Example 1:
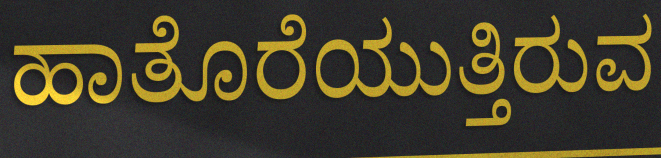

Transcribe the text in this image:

ಹಾತೊರೆಯುತ್ತಿರುವ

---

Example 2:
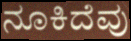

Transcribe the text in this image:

ನೂಕಿದೆವು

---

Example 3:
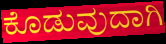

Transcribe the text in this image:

ಕೊಡುವುದಾಗಿ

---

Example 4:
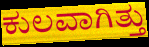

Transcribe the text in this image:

ಕುಲವಾಗಿತ್ತು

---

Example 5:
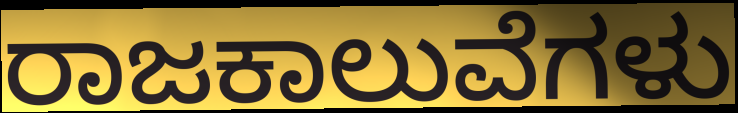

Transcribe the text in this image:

ರಾಜಕಾಲುವೆಗಳು